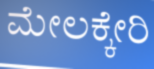
ಮೇಲಕ್ಕೇರಿ